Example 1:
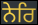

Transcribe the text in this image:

ਨੇਰਿ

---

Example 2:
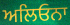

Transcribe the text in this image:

ਅਲਿਓਨਾ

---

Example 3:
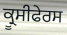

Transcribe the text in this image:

ਕ੍ਰੂਸੀਫੇਰਸ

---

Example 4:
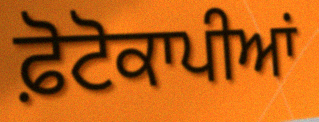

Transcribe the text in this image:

ਫ਼ੋਟੋਕਾਪੀਆਂ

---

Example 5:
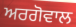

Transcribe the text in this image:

ਅਰਗੋਵਾਲ